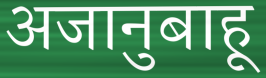
अजानुबाहू